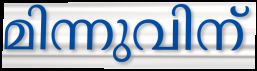
മിന്നുവിന്